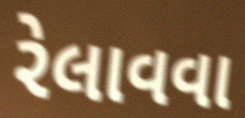
રેલાવવા